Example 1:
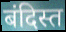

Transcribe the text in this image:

बंदिस्त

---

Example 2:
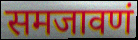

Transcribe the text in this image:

समजावणं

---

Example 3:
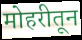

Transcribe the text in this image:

मोहरीतून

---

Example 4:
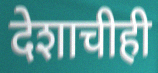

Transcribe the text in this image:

देशाचीही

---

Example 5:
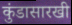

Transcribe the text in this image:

कुंडासारखी